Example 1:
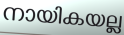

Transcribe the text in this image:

നായികയല്ല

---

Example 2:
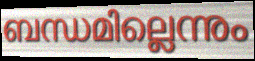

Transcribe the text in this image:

ബന്ധമില്ലെന്നും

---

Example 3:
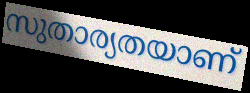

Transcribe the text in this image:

സുതാര്യതയാണ്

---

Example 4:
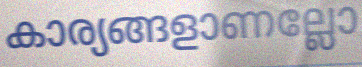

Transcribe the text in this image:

കാര്യങ്ങളാണല്ലോ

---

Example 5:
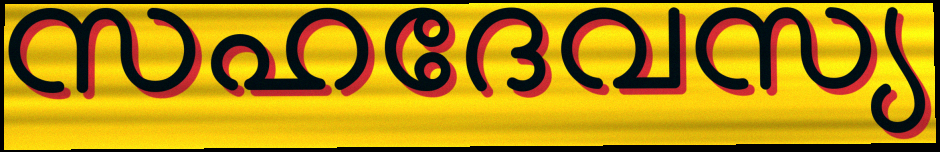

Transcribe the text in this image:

സഹദേവസ്യ